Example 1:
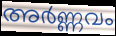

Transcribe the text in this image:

അർണ്ണവം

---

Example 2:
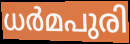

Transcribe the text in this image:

ധർമപുരി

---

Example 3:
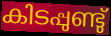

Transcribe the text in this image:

കിടപ്പുണ്ടു്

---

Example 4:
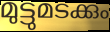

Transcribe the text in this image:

മുട്ടുമടക്കും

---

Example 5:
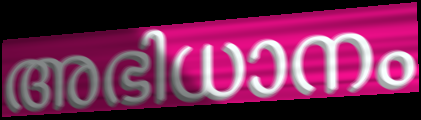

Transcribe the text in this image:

അഭിധാനം